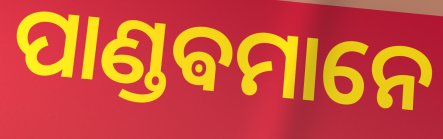
ପାଣ୍ଡଵମାନେ